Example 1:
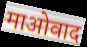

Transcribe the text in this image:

माओवाद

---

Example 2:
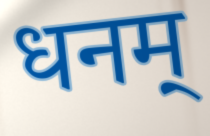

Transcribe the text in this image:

धनम्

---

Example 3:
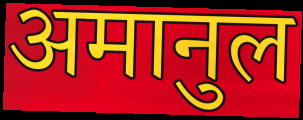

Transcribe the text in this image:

अमानुल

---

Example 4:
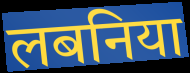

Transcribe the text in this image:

लबनिया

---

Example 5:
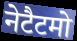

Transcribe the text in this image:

नेटैटमो